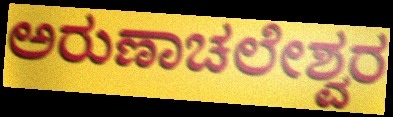
ಅರುಣಾಚಲೇಶ್ವರ